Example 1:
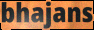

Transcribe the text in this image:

bhajans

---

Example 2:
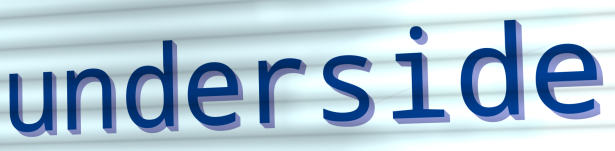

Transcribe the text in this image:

underside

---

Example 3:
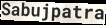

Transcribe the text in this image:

Sabujpatra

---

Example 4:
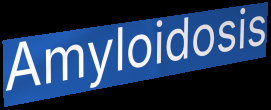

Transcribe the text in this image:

Amyloidosis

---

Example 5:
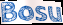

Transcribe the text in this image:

Bosu